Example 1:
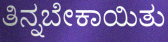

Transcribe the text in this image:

ತಿನ್ನಬೇಕಾಯಿತು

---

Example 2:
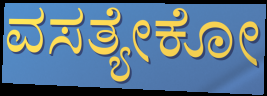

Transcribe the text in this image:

ವಸತ್ಯೇಕೋ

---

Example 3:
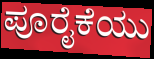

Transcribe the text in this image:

ಪೂರೈಕೆಯು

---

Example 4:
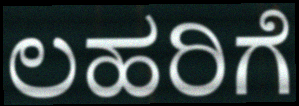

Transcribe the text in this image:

ಲಹರಿಗೆ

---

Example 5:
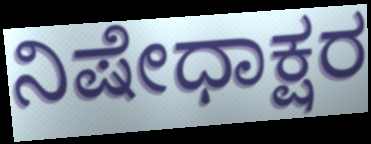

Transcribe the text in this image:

ನಿಷೇಧಾಕ್ಷರ